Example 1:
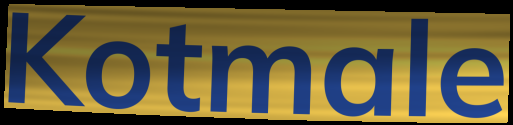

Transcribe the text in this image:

Kotmale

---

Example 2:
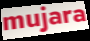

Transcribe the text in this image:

mujara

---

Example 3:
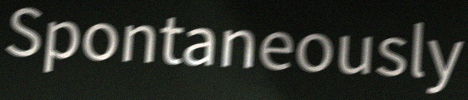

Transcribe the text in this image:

Spontaneously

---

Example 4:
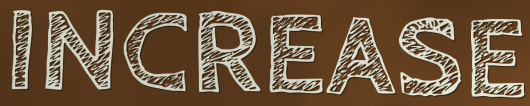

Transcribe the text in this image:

INCREASE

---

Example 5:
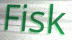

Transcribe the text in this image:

Fisk